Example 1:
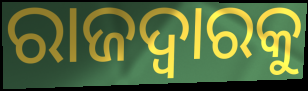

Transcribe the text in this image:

ରାଜଦ୍ୱାରକୁ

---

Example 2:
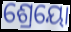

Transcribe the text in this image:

ଶ୍ରେୟୋ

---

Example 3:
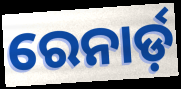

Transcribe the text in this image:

ରେନାର୍ଡ଼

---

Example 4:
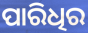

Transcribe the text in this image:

ପାରିଧିର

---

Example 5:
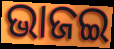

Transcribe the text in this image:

ଭାଜଇ